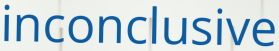
inconclusive